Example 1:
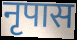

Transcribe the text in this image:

नृपास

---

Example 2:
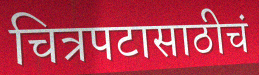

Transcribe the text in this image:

चित्रपटासाठीचं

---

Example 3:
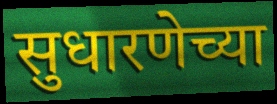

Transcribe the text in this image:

सुधारणेच्या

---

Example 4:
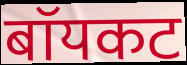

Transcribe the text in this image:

बॉयकट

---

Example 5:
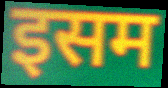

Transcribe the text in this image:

इसम